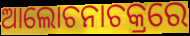
ଆଲୋଚନାଚକ୍ରରେ